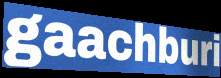
gaachburi